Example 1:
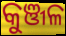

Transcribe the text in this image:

କୁଞ୍ଜଳ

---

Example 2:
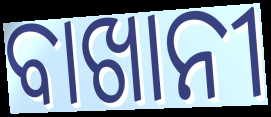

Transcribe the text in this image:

ବାଖାନୀ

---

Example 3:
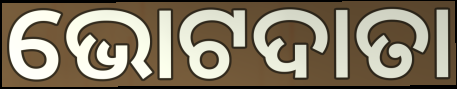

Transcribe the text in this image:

ଭୋଟଦାତା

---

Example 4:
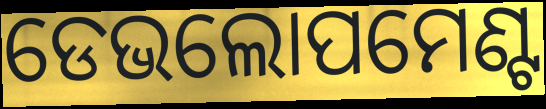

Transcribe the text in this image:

ଡେଭଲୋପମେଣ୍ଟ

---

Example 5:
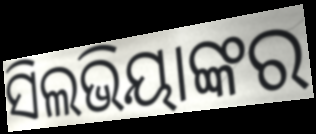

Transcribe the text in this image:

ସିଲଭିୟାଙ୍କର